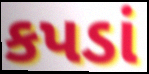
કપડાં